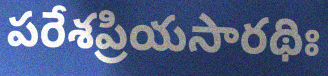
పరేశప్రియసారథిః